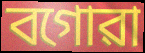
বগোৱা